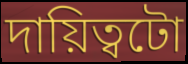
দায়িত্বটো